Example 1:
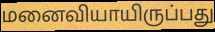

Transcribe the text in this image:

மனைவியாயிருப்பது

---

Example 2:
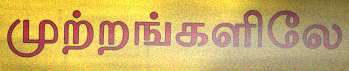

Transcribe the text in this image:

முற்றங்களிலே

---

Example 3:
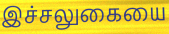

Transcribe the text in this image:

இச்சலுகையை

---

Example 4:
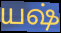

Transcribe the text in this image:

யஷ்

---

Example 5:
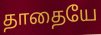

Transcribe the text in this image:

தாதையே